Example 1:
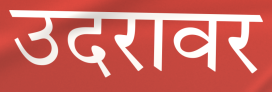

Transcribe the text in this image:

उदरावर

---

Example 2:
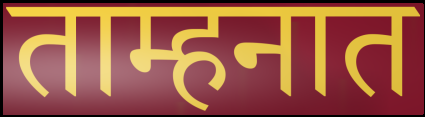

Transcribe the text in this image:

ताम्हनात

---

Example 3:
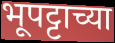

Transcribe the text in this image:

भूपट्टाच्या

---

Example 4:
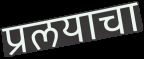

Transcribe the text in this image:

प्रलयाचा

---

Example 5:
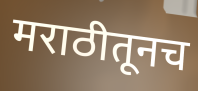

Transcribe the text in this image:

मराठीतूनच